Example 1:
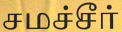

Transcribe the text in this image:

சமச்சீர்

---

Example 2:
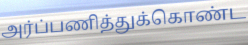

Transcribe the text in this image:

அர்ப்பணித்துக்கொண்ட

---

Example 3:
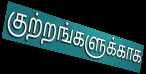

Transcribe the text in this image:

குற்றங்களுக்காக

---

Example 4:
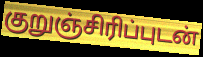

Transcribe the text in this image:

குறுஞ்சிரிப்புடன்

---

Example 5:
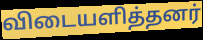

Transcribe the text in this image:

விடையளித்தனர்